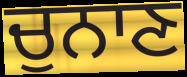
ਚੁਨਾਣ